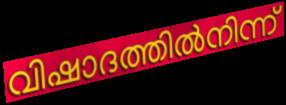
വിഷാദത്തിൽനിന്ന്